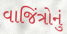
વાજિંત્રોનું